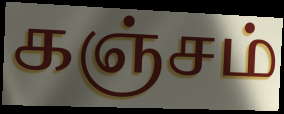
கஞ்சம்